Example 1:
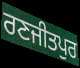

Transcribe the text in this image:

ਰਣਜੀਤਪੁਰ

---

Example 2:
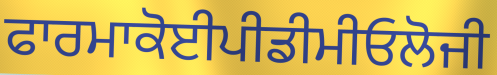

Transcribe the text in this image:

ਫਾਰਮਾਕੋਈਪੀਡੀਮੀਓਲੋਜੀ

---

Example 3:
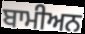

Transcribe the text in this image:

ਬਾਮੀਅਨ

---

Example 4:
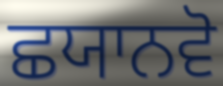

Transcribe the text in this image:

ਛਯਾਨਵੋ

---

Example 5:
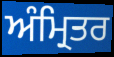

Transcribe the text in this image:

ਅੰਮ੍ਰਿਤਰ